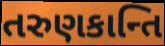
તરુણકાન્તિ